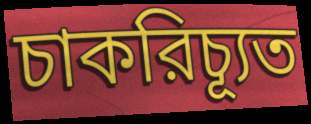
চাকরিচ্যূত